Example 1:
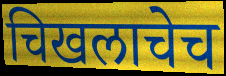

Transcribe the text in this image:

चिखलाचेच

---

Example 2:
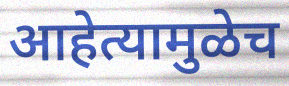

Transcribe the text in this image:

आहेत्यामुळेच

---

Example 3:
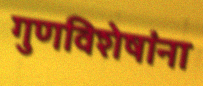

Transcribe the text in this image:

गुणविशेषांना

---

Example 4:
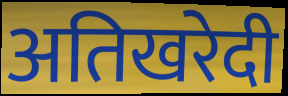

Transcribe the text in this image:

अतिखरेदी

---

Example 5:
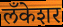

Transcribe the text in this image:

लँकेशर